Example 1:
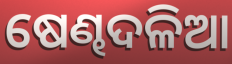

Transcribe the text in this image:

ଷେଣ୍ଢଦଳିଆ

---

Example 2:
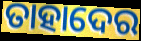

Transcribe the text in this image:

ତାହାଦେର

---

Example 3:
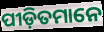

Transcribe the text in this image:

ପୀଡ଼ିତମାନେ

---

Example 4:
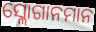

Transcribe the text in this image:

ସ୍ଲୋଗାନମାନ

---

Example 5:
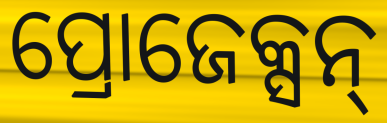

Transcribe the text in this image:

ପ୍ରୋଜେକ୍ସନ୍